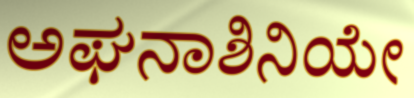
ಅಘನಾಶಿನಿಯೇ